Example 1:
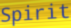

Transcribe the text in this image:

Spirit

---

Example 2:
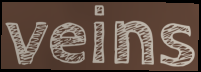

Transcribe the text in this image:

veins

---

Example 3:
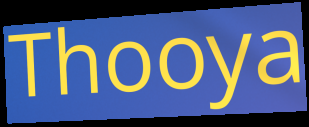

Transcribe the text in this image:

Thooya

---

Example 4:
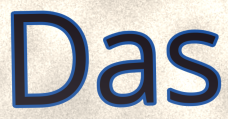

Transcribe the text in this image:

Das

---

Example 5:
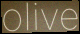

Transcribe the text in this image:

olive